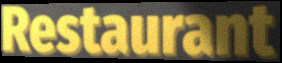
Restaurant